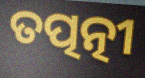
ତତ୍ପତ୍ନୀ